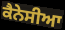
ਕੈਨੇਸੀਆ